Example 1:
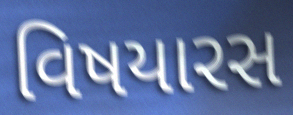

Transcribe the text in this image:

વિષયારસ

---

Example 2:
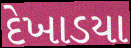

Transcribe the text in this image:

દેખાડયા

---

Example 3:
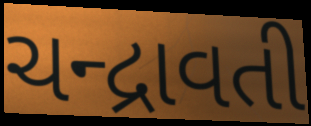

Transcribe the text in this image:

ચન્દ્રાવતી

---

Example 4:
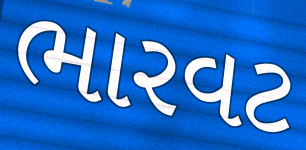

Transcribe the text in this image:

ભારવટ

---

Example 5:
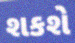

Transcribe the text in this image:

શકશે